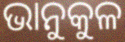
ଭାନୁକୁଳ